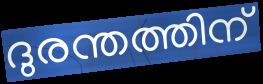
ദുരന്തത്തിന്